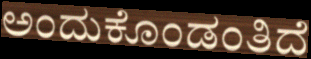
ಅಂದುಕೊಂಡಂತಿದೆ